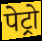
पेट्रो